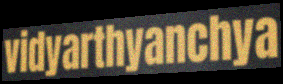
vidyarthyanchya